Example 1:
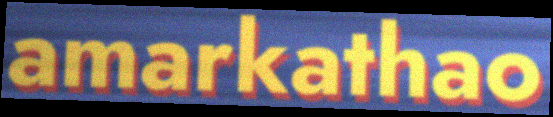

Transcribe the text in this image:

amarkathao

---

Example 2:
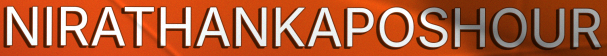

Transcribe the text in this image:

NIRATHANKAPOSHOUR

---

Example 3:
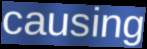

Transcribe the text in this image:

causing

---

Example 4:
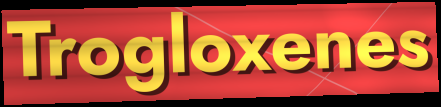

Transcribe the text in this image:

Trogloxenes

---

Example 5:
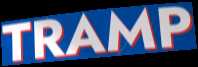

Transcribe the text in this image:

TRAMP